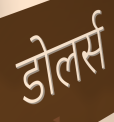
डोलर्स